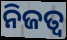
ନିଜତ୍ବ